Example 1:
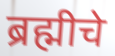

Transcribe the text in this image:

ब्रह्मीचे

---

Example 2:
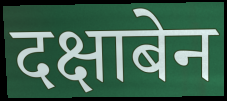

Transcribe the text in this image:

दक्षाबेन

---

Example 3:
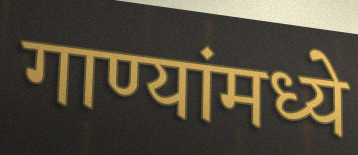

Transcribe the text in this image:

गाण्यांमध्ये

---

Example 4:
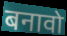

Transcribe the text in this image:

बनावो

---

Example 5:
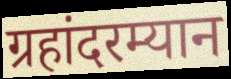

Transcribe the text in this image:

ग्रहांदरम्यान